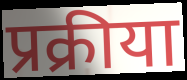
प्रक्रीया